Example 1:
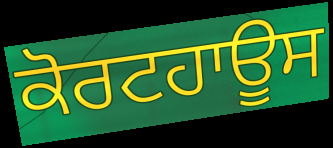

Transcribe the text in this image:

ਕੋਰਟਹਾਊਸ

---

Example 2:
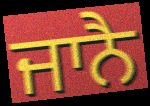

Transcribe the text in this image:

ਜਾਨੈ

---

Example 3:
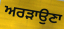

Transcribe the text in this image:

ਅਰੜਾਉਣਾ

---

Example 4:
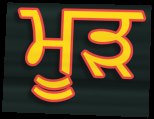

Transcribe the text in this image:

ਮੂੜ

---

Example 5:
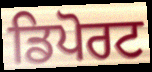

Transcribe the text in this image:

ਡਿਪੋਰਟ